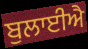
ਬੁਲਾਈਐ